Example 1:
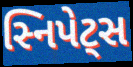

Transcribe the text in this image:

સ્નિપેટ્સ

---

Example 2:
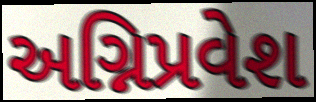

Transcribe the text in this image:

અગ્નિપ્રવેશ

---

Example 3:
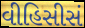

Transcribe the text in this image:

વીહિસીસં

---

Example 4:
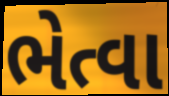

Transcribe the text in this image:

ભેત્વા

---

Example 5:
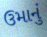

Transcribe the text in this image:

ઉમાનું